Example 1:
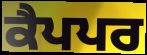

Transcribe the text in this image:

ਕੈਪਪਰ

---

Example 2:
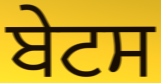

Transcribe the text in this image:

ਬੇਟਸ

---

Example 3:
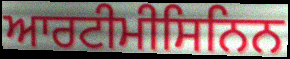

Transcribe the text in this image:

ਆਰਟੀਮੀਸਿਨਿਨ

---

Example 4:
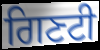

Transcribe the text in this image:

ਗਿਣਟੀ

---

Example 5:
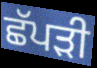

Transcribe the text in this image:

ਛੱਪੜੀ